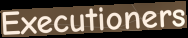
Executioners